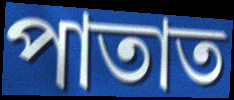
পাতাত